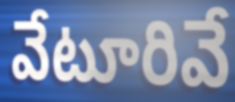
వేటూరివే